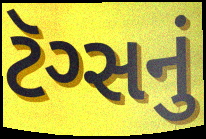
ટૅગ્સનું